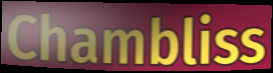
Chambliss